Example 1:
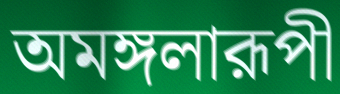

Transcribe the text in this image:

অমঙ্গলারূপী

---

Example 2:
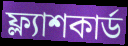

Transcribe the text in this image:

ফ্ল্যাশকার্ড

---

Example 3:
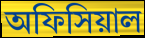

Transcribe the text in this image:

অফিসিয়াল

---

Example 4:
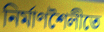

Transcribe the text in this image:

নির্মাণশৈলীতে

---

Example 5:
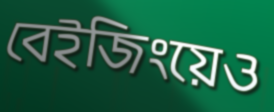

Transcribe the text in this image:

বেইজিংয়েও